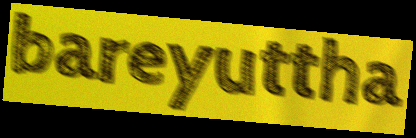
bareyuttha